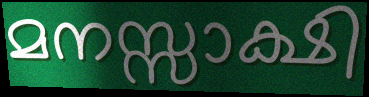
മനസ്സാക്ഷി